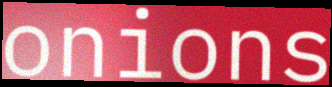
onions